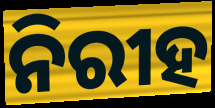
ନିରୀହ